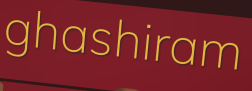
ghashiram